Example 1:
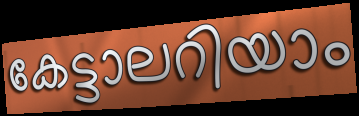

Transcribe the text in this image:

കേട്ടാലറിയാം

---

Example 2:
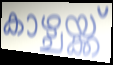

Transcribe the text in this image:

കാഴ്ചയ്ക്ക്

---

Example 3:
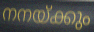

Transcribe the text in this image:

നനയ്ക്കും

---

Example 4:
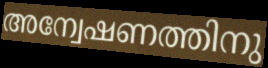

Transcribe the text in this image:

അന്വേഷണത്തിനു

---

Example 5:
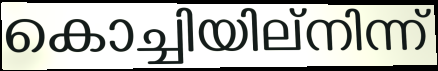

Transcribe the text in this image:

കൊച്ചിയില്നിന്ന്